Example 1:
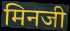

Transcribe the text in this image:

मिनजी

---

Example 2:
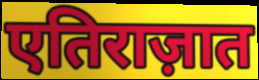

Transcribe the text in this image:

एतिराज़ात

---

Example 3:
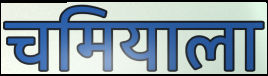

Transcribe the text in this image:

चमियाला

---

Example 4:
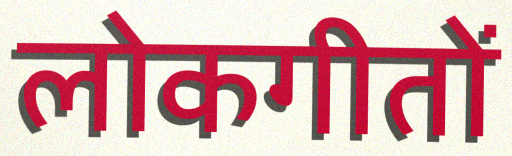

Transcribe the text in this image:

लोकगीतों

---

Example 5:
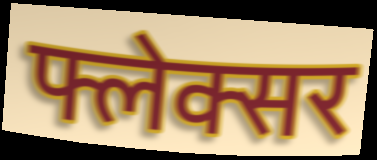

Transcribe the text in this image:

फ्लेक्सर